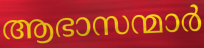
ആഭാസന്മാർ